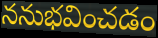
ననుభవించడం